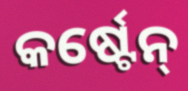
କର୍ଷ୍ଟେନ୍